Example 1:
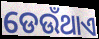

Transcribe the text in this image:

ଡେଉଁଥାଏ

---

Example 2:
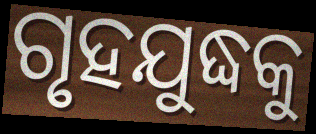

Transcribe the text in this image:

ଗୃହଯୁଦ୍ଧକୁ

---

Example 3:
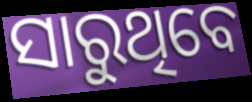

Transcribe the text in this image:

ସାରୁଥିବେ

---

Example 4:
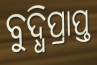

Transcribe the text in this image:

ବୁଦ୍ଧିପ୍ରାପ୍ତ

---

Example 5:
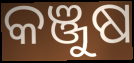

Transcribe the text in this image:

କଞ୍ଜୁଷ